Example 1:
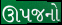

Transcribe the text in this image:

ઊપજનો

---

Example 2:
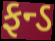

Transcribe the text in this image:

ફન્ડ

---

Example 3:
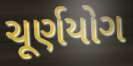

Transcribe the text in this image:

ચૂર્ણયોગ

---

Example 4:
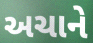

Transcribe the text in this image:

અચાને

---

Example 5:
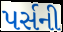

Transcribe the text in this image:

પર્સની